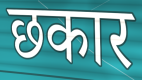
छकार